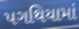
પગથિયામાં